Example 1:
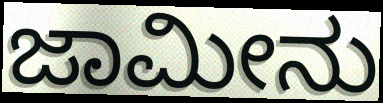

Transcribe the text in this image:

ಜಾಮೀನು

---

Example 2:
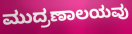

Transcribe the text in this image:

ಮುದ್ರಣಾಲಯವು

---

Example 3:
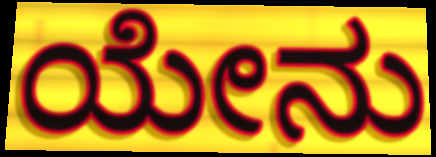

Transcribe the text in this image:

ಯೇನು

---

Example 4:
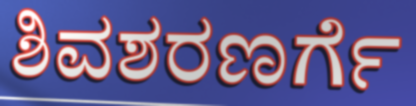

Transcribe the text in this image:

ಶಿವಶರಣರ್ಗೆ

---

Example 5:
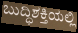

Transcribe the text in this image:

ಬುದ್ಧಿಶಕ್ತಿಯಲ್ಲಿ